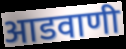
आडवाणी